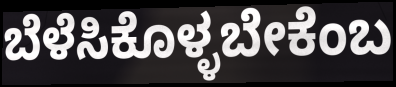
ಬೆಳೆಸಿಕೊಳ್ಳಬೇಕೆಂಬ